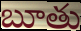
బూతు